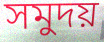
সমুদয়